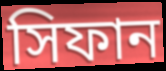
সিফান